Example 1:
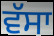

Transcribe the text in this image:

ਵੱਸਾ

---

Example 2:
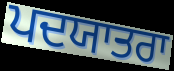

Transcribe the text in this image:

ਪਦਯਾਤਰਾ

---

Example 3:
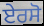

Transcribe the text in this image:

ਏਰਸੋ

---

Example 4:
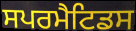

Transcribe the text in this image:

ਸਪਰਮੈਟਿਡਸ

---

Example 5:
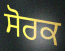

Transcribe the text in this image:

ਸੋਰਕ